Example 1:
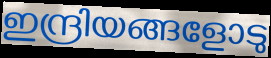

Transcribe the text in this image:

ഇന്ദ്രിയങ്ങളോടു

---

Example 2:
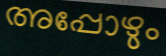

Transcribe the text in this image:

അപ്പോഴും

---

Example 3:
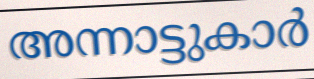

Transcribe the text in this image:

അന്നാട്ടുകാർ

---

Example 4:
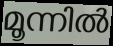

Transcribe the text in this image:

മൂന്നിൽ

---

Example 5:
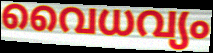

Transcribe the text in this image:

വൈധവ്യം